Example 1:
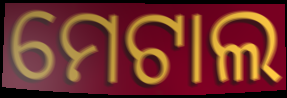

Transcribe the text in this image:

ମେଟାଲ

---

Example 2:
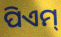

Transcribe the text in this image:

ପିଏମ୍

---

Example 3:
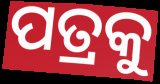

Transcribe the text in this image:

ପତ୍ରକୁ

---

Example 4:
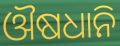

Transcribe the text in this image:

ଔଷଧାନି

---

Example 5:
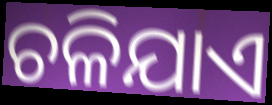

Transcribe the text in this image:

ଚଳିଯାଏ